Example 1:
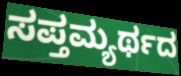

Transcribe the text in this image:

ಸಪ್ತಮ್ಯರ್ಥದ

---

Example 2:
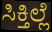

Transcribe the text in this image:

ಸಿಕ್ತಿಲ್ಲೆ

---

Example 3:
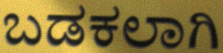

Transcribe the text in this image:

ಬಡಕಲಾಗಿ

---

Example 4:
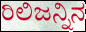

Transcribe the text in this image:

ರಿಲಿಜನ್ನಿನ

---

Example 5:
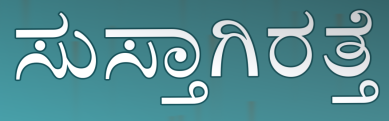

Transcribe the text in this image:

ಸುಸ್ತಾಗಿರತ್ತೆ